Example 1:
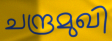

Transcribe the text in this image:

ചന്ദ്രമുഖി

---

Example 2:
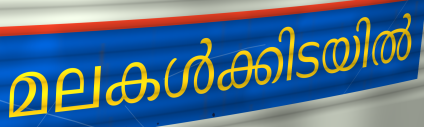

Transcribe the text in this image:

മലകൾക്കിടയിൽ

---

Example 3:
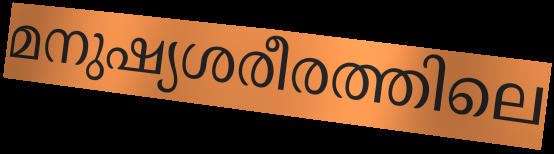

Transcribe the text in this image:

മനുഷ്യശരീരത്തിലെ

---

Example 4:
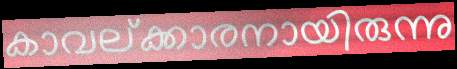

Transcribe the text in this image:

കാവല്ക്കാരനായിരുന്നു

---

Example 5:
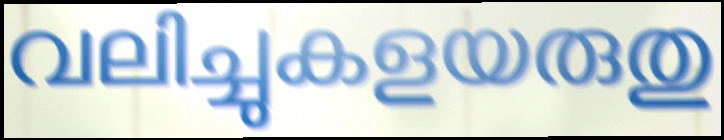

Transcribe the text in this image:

വലിച്ചുകളയരുതു